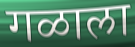
गळाला